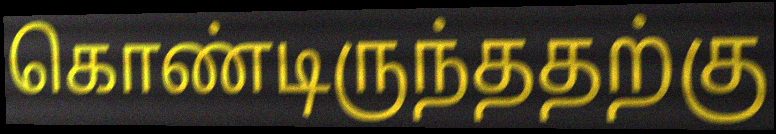
கொண்டிருந்ததற்கு